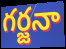
గర్జనా